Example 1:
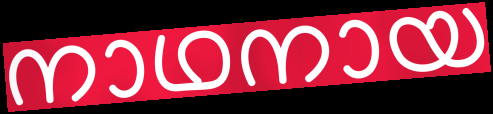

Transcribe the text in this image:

നാഥനായ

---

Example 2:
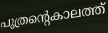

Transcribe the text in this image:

പുത്രന്റെകാലത്ത്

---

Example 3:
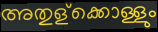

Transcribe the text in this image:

അതുള്ക്കൊള്ളും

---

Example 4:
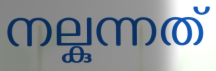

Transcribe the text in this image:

നല്കുന്നത്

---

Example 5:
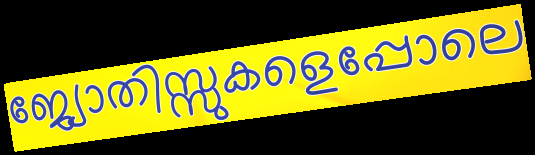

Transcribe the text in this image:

ജ്യോതിസ്സുകളെപ്പോലെ